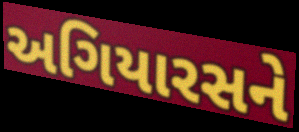
અગિયારસને